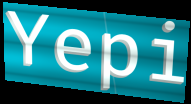
Yepi